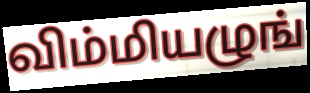
விம்மியழுங்